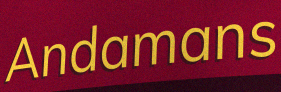
Andamans